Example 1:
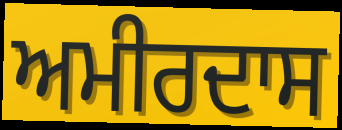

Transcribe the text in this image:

ਅਮੀਰਦਾਸ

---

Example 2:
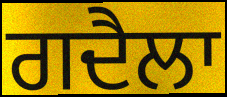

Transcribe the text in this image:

ਗਦੈਲਾ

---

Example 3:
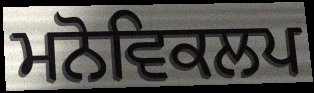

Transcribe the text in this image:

ਮਨੋਵਿਕਲਪ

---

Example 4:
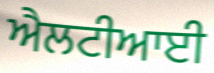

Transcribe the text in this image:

ਐਲਟੀਆਈ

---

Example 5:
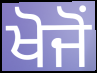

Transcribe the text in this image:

ਖੋਜੋਂ